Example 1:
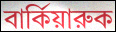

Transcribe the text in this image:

বার্কিয়ারুক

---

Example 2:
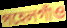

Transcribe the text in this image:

পহেলগাঁও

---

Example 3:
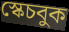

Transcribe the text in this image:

স্কেচবুক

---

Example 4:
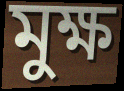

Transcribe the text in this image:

মুক্ষ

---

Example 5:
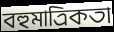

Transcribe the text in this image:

বহুমাত্রিকতা